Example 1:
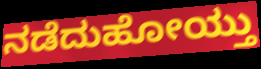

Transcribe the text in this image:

ನಡೆದುಹೋಯ್ತು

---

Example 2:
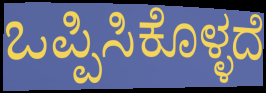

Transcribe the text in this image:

ಒಪ್ಪಿಸಿಕೊಳ್ಳದೆ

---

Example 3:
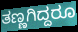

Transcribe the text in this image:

ತಣ್ಣಗಿದ್ದರೂ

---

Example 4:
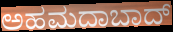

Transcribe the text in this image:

ಅಹಮದಾಬಾದ್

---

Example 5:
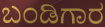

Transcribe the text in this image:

ಬಂಡಿಗಾರ